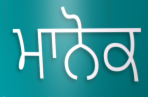
ਮਾਨੋਕ